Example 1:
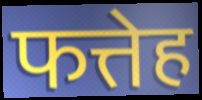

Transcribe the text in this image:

फत्तेह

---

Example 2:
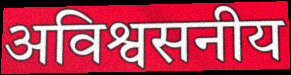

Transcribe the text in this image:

अविश्वसनीय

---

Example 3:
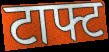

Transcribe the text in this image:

टाफ्ट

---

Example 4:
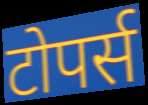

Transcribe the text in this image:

टोपर्स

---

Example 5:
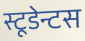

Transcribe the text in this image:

स्टूडेन्टस